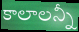
కాలాలన్నీ